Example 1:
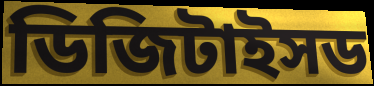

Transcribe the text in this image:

ডিজিটাইসড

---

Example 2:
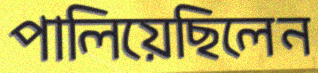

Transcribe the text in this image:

পালিয়েছিলেন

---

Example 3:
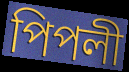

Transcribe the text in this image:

পিপলী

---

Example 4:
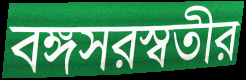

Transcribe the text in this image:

বঙ্গসরস্বতীর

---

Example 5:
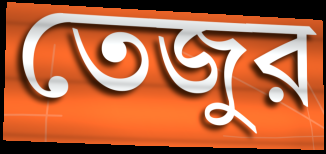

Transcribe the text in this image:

তেজুর